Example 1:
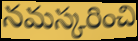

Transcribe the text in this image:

నమస్కరించి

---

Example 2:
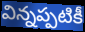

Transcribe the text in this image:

విన్నప్పటికీ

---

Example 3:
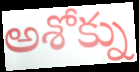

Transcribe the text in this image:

అశోక్ను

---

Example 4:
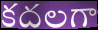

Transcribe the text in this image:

కదలగా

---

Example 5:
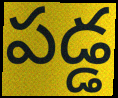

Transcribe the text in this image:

పడ్డ